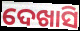
ଦେଖାସି